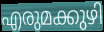
എരുമക്കുഴി